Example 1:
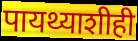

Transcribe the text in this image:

पायथ्याशीही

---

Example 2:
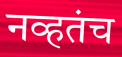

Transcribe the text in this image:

नव्हतंच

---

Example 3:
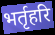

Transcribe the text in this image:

भर्तृहरि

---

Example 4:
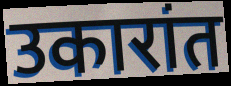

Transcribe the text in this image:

उकारांत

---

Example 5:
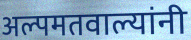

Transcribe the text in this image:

अल्पमतवाल्यांनी